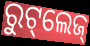
ରୁଟ୍‌ଲେଜ୍